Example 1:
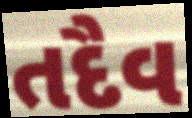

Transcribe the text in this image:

તદૈવ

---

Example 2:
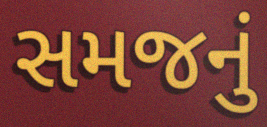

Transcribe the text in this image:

સમજનું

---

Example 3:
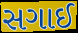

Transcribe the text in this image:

સગાઈ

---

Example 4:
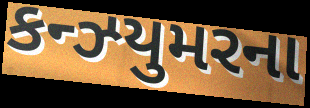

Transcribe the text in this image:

કન્ઝ્યુમરના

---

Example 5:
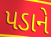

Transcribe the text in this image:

પડાને